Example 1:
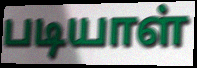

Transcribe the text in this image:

படியாள்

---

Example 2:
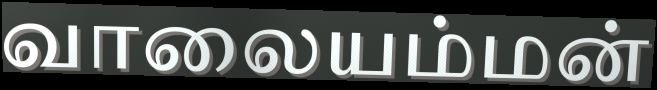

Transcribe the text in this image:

வாலையம்மன்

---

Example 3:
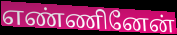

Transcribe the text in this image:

எண்ணினேன்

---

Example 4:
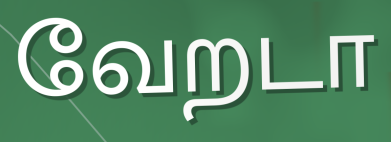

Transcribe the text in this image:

வேறடா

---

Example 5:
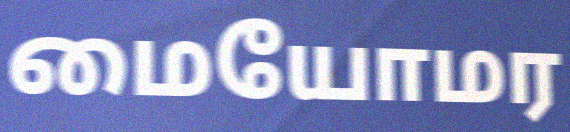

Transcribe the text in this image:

மையோமர